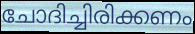
ചോദിച്ചിരിക്കണം